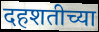
दहशतीच्या